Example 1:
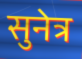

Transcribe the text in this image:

सुनेत्र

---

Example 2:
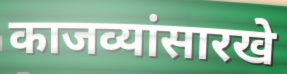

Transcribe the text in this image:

काजव्यांसारखे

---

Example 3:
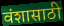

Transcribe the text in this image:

वंशासाठी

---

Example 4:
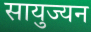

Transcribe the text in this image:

सायुज्यन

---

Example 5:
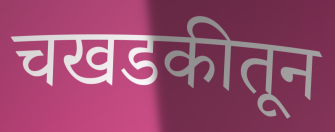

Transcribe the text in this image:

चखडकीतून